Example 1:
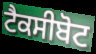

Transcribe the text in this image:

ਟੈਕਸੀਬੋਟ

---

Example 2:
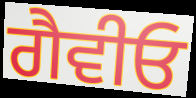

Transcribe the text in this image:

ਗੈਵੀਓ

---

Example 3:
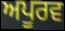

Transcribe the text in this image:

ਅਪੂਰਵ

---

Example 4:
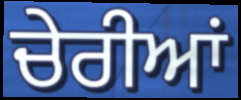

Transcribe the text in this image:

ਚੇਰੀਆਂ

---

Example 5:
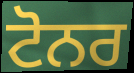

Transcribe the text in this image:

ਟੋਨਰ